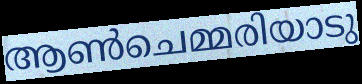
ആൺചെമ്മരിയാടു